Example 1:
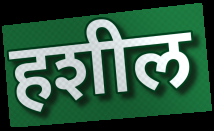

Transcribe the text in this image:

हशील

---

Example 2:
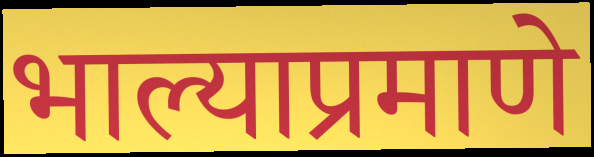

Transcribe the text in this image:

भाल्याप्रमाणे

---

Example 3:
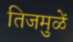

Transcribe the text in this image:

तिजमुळें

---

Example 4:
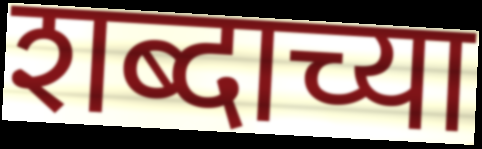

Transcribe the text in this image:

शब्दाच्या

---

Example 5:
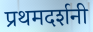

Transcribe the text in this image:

प्रथमदर्शनी